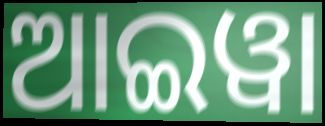
ଆଇୱା